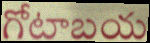
గోటాబయ